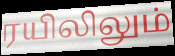
ரயிலிலும்